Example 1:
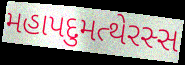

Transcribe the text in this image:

મહાપદુમત્થેરસ્સ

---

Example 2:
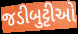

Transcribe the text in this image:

જડીબુટ્ટીઓ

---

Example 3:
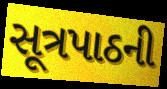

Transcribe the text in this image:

સૂત્રપાઠની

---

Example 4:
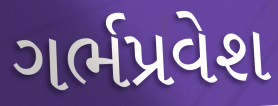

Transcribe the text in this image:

ગર્ભપ્રવેશ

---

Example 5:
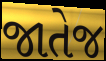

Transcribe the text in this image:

જાતેજ